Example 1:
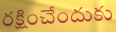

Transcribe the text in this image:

రక్షించేందుకు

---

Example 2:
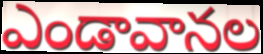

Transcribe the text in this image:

ఎండావానల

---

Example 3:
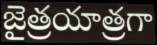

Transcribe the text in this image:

జైత్రయాత్రగా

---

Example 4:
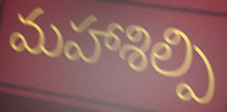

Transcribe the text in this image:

మహాశిల్పి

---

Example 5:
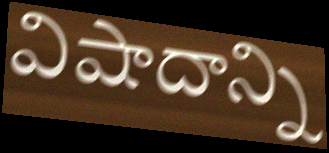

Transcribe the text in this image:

విషాదాన్ని